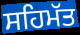
ਸਹਿਮੱਤ